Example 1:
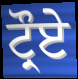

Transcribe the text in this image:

ਟ੍ਰੌਏ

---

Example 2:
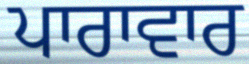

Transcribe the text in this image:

ਪਾਰਾਵਾਰ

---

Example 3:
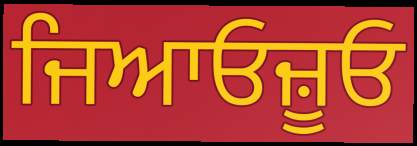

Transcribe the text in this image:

ਜਿਆਓਜ਼ੂਓ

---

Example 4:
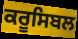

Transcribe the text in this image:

ਕਰੂਸਿਬਲ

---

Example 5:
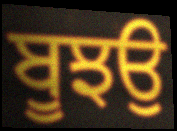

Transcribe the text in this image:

ਬੂਝਉ